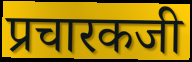
प्रचारकजी